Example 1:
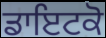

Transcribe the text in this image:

ਡਾਇਟਕੋ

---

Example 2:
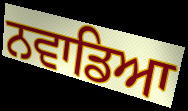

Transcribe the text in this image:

ਨਵਾਡਿਆ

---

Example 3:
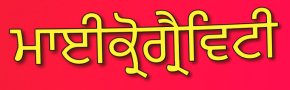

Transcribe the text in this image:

ਮਾਈਕ੍ਰੋਗ੍ਰੈਵਿਟੀ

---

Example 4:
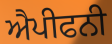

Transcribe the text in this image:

ਐਪੀਫਨੀ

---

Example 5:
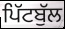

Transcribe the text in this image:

ਪਿੱਟਬੁੱਲ